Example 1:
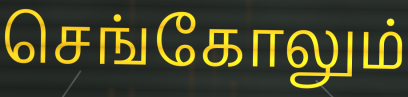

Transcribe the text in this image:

செங்கோலும்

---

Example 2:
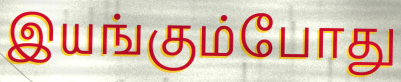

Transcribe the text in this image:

இயங்கும்போது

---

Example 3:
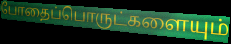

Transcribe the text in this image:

போதைப்பொருட்களையும்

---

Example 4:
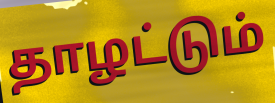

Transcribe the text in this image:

தாழட்டும்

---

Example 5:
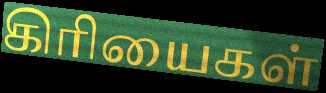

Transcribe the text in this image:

கிரியைகள்